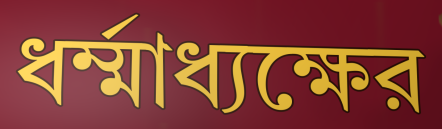
ধর্ম্মাধ্যক্ষের